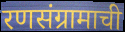
रणसंग्रामाची